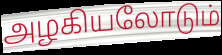
அழகியலோடும்